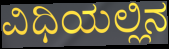
ವಿಧಿಯಲ್ಲಿನ